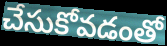
చేసుకోవడంతో